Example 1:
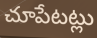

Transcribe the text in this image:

చూపేటట్లు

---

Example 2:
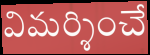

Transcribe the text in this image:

విమర్శించే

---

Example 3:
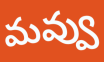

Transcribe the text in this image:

మవ్వు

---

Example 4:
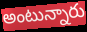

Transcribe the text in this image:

అంటున్నారు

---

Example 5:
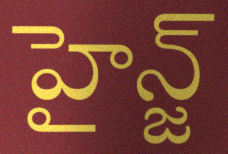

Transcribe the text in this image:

హైన్జ్